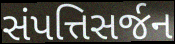
સંપત્તિસર્જન